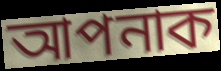
আপনাক